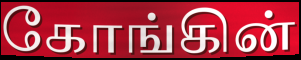
கோங்கின்